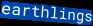
earthlings